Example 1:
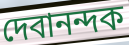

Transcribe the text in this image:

দেবানন্দক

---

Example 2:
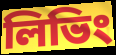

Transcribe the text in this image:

লিভিং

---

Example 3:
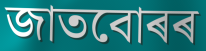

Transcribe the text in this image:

জাতবোৰৰ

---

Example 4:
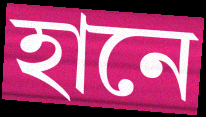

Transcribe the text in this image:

হানে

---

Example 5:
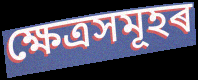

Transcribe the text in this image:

ক্ষেত্ৰসমূহৰ